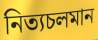
নিত্যচলমান